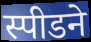
स्पीडने